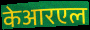
केआरएल